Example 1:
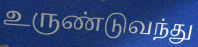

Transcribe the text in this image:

உருண்டுவந்து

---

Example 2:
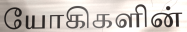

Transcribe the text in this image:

யோகிகளின்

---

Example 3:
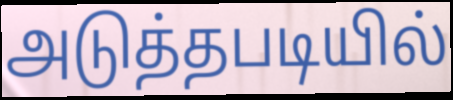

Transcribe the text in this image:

அடுத்தபடியில்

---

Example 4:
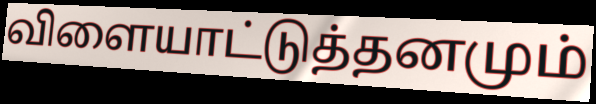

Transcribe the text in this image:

விளையாட்டுத்தனமும்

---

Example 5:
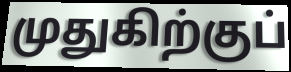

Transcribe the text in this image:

முதுகிற்குப்